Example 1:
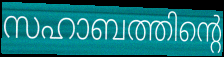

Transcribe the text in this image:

സഹാബത്തിന്റെ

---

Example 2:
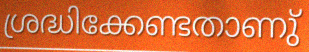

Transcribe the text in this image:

ശ്രദ്ധിക്കേണ്ടതാണു്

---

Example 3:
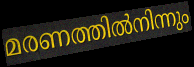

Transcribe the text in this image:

മരണത്തിൽനിന്നും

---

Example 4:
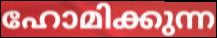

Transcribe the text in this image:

ഹോമിക്കുന്ന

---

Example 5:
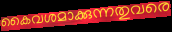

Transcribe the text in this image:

കൈവശമാക്കുന്നതുവരെ